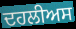
ਦਹਲੀਅਸ